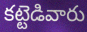
కట్టెడివారు